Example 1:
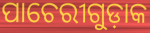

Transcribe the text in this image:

ପାଚେରୀଗୁଡ଼ାକ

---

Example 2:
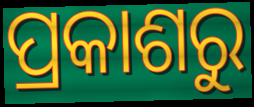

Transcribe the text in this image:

ପ୍ରକାଶରୁ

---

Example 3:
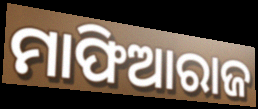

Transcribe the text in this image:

ମାଫିଆରାଜ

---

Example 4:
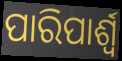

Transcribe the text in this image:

ପାରିପାର୍ଶ୍ୱ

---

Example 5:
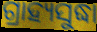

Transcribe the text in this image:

ଗ୍ରାହ୍ୟସୁଦ୍ଧା